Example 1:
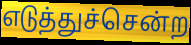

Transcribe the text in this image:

எடுத்துச்சென்ற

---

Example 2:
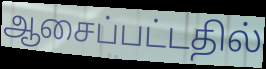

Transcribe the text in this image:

ஆசைப்பட்டதில்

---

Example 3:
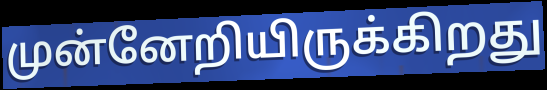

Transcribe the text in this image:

முன்னேறியிருக்கிறது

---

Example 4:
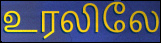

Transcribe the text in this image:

உரலிலே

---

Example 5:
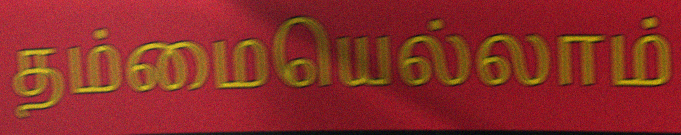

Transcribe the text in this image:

தம்மையெல்லாம்